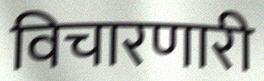
विचारणारी